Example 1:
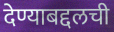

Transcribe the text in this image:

देण्याबद्दलची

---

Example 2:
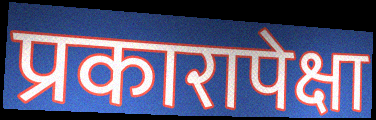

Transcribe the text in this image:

प्रकारापेक्षा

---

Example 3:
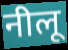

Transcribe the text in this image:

नीलू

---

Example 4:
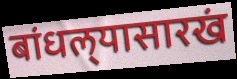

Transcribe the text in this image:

बांधल्यासारखं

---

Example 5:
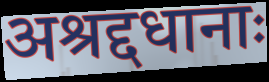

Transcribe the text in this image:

अश्रद्दधानाः